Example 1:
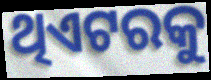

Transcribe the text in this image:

ଥିଏଟରକୁ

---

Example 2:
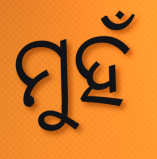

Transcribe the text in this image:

ମୁହଁ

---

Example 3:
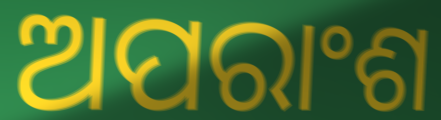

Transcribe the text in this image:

ଅପରାଂଶ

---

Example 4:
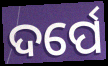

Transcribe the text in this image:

ଦର୍ପେ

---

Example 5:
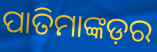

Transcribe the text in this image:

ପାତିମାଙ୍କଡ଼ର